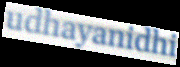
udhayanidhi